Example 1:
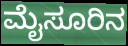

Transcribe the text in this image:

ಮೈಸೂರಿನ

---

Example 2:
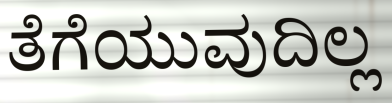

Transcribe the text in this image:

ತೆಗೆಯುವುದಿಲ್ಲ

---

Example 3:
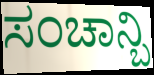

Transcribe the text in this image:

ಸಂಚಾನ್ಬಿ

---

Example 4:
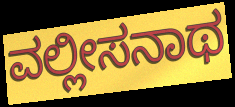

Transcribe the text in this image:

ವಲ್ಲೀಸನಾಥ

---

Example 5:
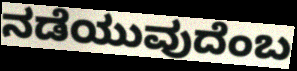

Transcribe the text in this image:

ನಡೆಯುವುದೆಂಬ